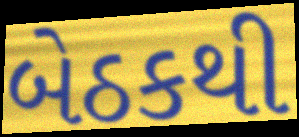
બેઠકથી